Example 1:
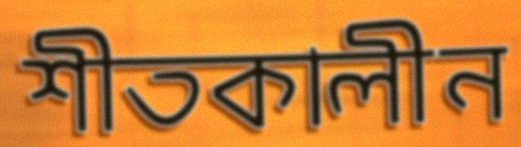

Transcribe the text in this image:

শীতকালীন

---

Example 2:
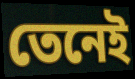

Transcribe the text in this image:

তেনেই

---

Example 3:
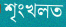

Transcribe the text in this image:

শৃংখলত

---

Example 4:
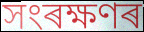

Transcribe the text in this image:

সংৰক্ষণৰ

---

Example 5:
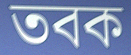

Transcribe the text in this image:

তবক